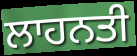
ਲਾਹਨਤੀ